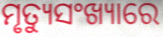
ମୃତ୍ୟୁସଂଖ୍ୟାରେ